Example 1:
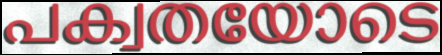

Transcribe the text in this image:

പക്വതയോടെ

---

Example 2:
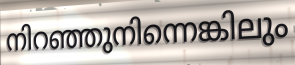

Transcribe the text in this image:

നിറഞ്ഞുനിന്നെങ്കിലും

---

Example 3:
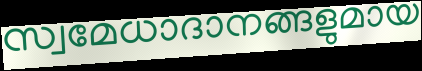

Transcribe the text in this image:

സ്വമേധാദാനങ്ങളുമായ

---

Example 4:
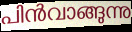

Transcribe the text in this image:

പിൻവാങ്ങുന്നു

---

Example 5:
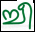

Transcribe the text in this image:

ച്ചീ